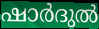
ഷാർദുൽ